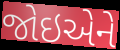
જોઇએને